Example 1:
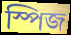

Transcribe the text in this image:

স্পিজ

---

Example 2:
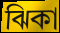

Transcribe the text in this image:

ঝিকা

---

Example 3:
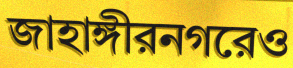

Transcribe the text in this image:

জাহাঙ্গীরনগরেও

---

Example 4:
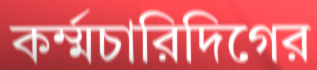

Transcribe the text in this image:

কর্ম্মচারিদিগের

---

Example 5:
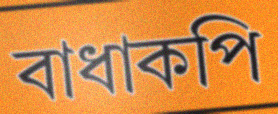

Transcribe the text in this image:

বাধাকপি